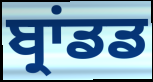
ਬ੍ਰਾਂਡਡ